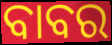
ବାବର